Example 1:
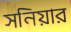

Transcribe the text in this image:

সনিয়ার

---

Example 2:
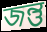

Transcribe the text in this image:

জন্তু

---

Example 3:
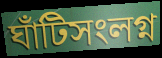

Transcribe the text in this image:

ঘাঁটিসংলগ্ন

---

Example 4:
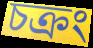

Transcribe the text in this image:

চক্রং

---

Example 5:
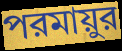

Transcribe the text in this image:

পরমায়ুর